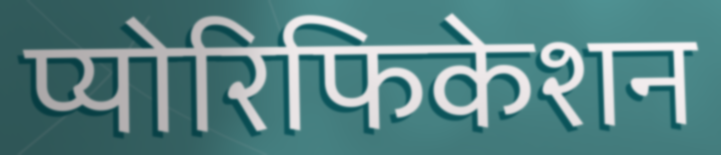
प्योरिफिकेशन